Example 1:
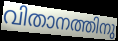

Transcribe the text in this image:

വിതാനത്തിനു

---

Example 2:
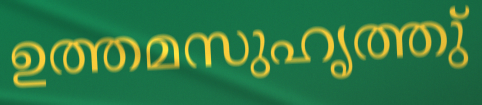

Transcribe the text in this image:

ഉത്തമസുഹൃത്തു്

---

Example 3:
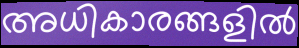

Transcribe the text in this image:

അധികാരങ്ങളിൽ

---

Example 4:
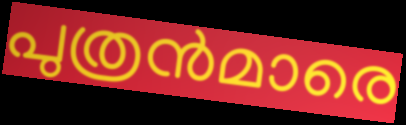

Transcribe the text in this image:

പുത്രൻമാരെ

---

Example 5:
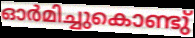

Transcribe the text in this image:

ഓർമിച്ചുകൊണ്ടു്